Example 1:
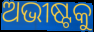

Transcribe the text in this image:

ଅଭୀଷ୍ଟକୁ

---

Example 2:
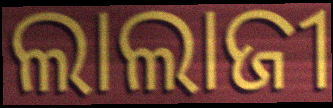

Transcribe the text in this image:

ଲାଲାଜୀ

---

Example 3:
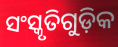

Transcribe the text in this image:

ସଂସ୍କୃତିଗୁଡ଼ିକ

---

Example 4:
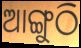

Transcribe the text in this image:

ଆଙ୍ଗୁଠି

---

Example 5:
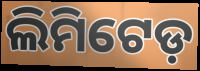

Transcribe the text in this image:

ଲିମିଟେଡ଼